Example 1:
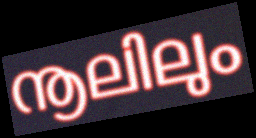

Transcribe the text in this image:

നൂലിലും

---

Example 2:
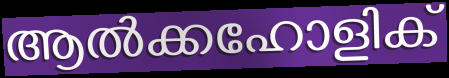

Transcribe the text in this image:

ആൽക്കഹോളിക്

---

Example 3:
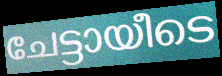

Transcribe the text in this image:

ചേട്ടായീടെ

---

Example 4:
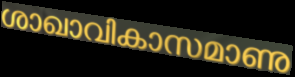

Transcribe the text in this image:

ശാഖാവികാസമാണു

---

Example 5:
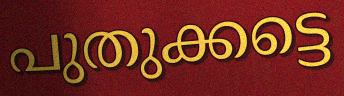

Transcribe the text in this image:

പുതുക്കട്ടെ